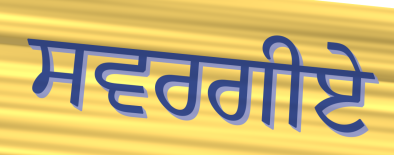
ਸਵਰਗੀਏ